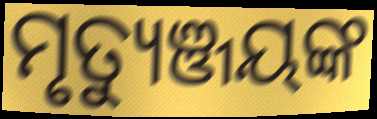
ମୃତ୍ୟୁଞ୍ଜୟଙ୍କ